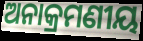
ଅନାକ୍ରମଣୀୟ